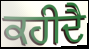
ਕਹੀਦੈ